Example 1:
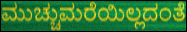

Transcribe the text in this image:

ಮುಚ್ಚುಮರೆಯಿಲ್ಲದಂತೆ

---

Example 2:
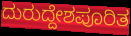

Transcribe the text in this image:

ದುರುದ್ದೇಶಪೂರಿತ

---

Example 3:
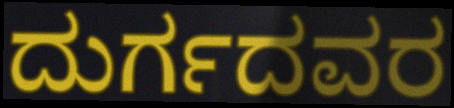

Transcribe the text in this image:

ದುರ್ಗದವರ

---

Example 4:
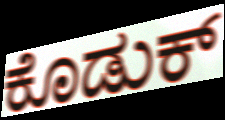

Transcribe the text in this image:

ಕೊಡುಕ್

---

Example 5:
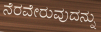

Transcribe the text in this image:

ನೆರವೇರುವುದನ್ನು